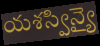
యశస్విన్యై